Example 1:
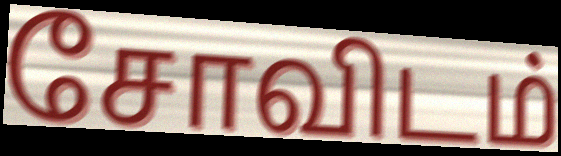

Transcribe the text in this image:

சோவிடம்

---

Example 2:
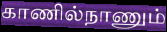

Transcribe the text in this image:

காணில்நாணும்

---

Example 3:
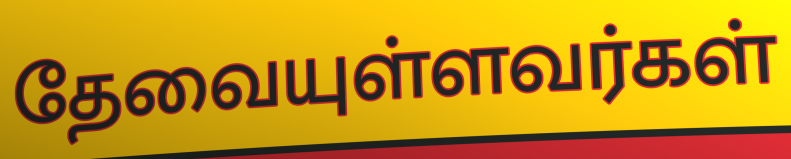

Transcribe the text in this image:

தேவையுள்ளவர்கள்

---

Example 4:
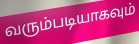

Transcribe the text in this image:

வரும்படியாகவும்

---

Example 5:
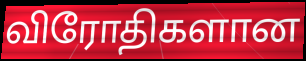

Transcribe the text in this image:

விரோதிகளான